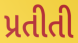
પ્રતીતી